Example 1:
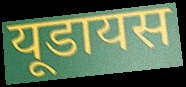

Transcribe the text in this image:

यूडायस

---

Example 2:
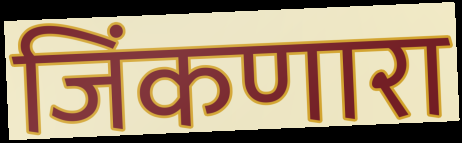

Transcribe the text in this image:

जिंकणारा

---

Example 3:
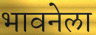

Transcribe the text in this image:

भावनेला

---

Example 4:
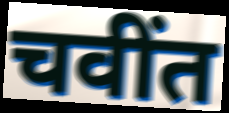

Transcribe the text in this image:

चवींत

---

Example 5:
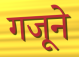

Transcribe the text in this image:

गजूने